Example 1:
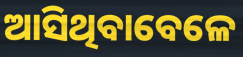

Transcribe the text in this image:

ଆସିଥିବାବେଳେ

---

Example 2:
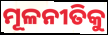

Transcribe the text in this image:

ମୂଳନୀତିକୁ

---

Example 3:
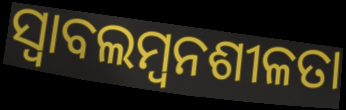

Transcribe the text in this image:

ସ୍ୱାବଲମ୍ୱନଶୀଳତା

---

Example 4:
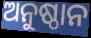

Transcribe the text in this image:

ଅନୁଷ୍ଠାନ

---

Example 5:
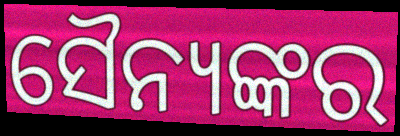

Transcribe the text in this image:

ସୈନ୍ୟଙ୍କର